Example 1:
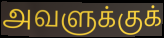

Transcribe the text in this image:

அவளுக்குக்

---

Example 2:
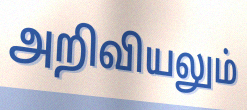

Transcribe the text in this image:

அறிவியலும்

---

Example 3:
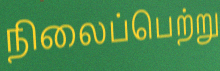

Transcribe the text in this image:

நிலைப்பெற்று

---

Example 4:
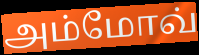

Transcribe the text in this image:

அம்மோவ்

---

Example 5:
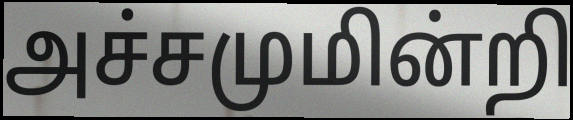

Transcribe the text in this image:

அச்சமுமின்றி